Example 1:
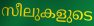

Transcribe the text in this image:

സീലുകളുടെ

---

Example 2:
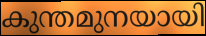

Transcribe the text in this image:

കുന്തമുനയായി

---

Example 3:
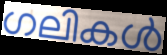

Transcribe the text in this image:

ഗലികൾ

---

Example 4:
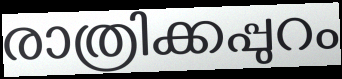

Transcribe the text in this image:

രാത്രിക്കപ്പുറം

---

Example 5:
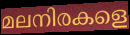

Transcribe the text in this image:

മലനിരകളെ